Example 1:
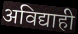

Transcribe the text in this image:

अविद्याही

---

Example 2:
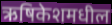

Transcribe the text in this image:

ऋषिकेशमधील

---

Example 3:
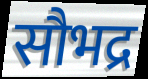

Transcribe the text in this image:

सौभद्र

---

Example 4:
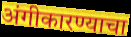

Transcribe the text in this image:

अंगीकारण्याचा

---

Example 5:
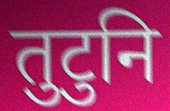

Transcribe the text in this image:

तुटुनि